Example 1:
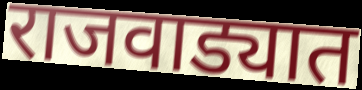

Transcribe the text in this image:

राजवाड्यात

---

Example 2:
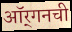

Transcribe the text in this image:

ऑर्गनची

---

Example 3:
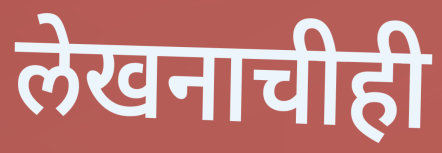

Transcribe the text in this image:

लेखनाचीही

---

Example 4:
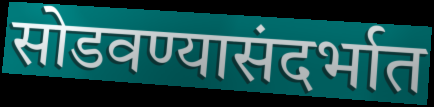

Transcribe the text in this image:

सोडवण्यासंदर्भात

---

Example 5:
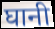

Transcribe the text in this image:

घानी